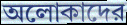
অলোকাদের